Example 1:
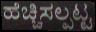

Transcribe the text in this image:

ಹೆಚ್ಚಿಸಲ್ಪಟ್ಟ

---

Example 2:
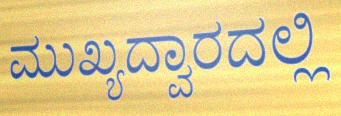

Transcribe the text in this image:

ಮುಖ್ಯದ್ವಾರದಲ್ಲಿ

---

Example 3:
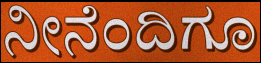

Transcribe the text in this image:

ನೀನೆಂದಿಗೂ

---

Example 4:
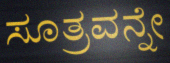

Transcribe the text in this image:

ಸೂತ್ರವನ್ನೇ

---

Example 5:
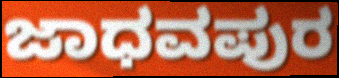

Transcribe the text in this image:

ಜಾಧವಪುರ